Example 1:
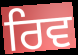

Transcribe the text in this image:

ਰਿਵ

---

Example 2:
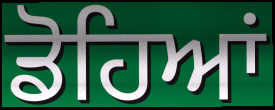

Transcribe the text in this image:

ਡੋਹਿਆਂ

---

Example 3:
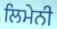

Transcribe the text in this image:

ਲਿਮੇਨੀ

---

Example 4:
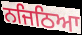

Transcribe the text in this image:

ਨਜਿਠਿਆ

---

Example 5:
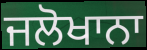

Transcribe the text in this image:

ਜਲੋਖਾਨਾ